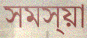
সমস্য়া